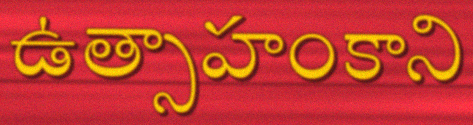
ఉత్సాహంకాని